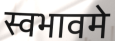
स्वभावमे